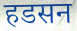
हडसन